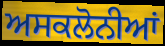
ਅਸਕਲੋਨੀਆਂ